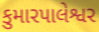
કુમારપાલેશ્વર